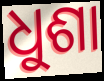
ଧୁଶା